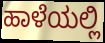
ಹಾಳೆಯಲ್ಲಿ